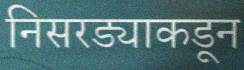
निसरड्याकडून